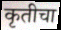
कृतीचा